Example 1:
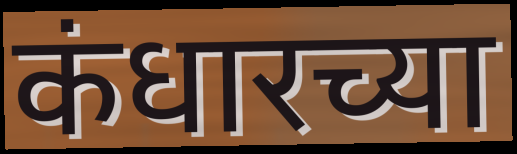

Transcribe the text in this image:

कंधारच्या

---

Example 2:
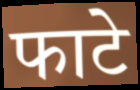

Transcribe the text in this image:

फाटे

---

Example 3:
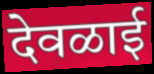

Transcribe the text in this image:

देवळाई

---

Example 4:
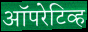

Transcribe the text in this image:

ऑपरेटिव्ह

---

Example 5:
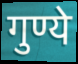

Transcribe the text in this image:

गुण्ये